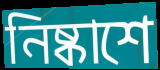
নিষ্কাশে